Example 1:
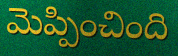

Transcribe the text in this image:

మెప్పించింది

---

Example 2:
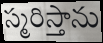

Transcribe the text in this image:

స్మరిస్తాను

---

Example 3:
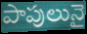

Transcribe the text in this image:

పాపులునై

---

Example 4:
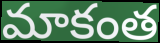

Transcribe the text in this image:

మాకంత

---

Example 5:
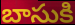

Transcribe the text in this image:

బాసుకి